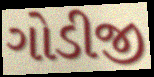
ગોડીજી